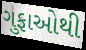
ગુફાઓથી